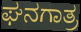
ಘನಗಾತ್ರ